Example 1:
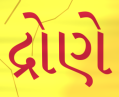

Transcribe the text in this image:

દ્રોણે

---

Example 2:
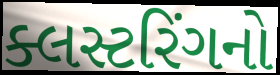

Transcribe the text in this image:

ક્લસ્ટરિંગનો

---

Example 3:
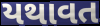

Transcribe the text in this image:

યથાવત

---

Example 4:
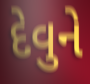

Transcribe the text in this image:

દેવુને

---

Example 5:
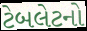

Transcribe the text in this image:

ટેબલેટનો